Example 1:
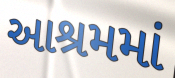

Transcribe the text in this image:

આશ્રમમાં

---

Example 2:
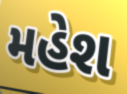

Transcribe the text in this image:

મહેશ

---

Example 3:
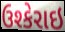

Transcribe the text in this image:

ઉશ્કેરાઇ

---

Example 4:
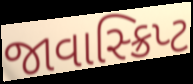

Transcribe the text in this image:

જાવાસ્ક્રિપ્ટ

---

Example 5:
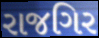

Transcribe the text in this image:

રાજગિર